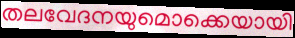
തലവേദനയുമൊക്കെയായി